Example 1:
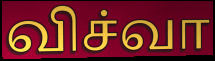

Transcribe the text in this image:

விச்வா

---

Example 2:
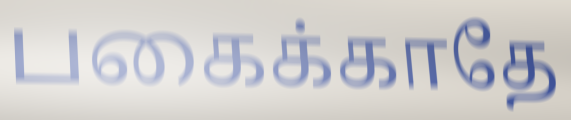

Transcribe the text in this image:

பகைக்காதே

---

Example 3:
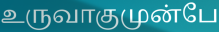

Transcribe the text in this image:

உருவாகுமுன்பே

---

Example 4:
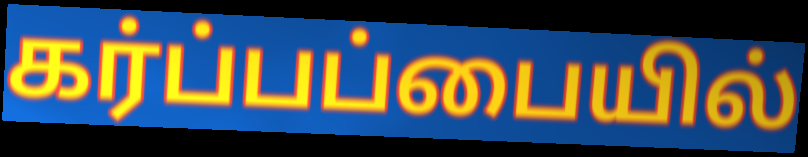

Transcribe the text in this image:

கர்ப்பப்பையில்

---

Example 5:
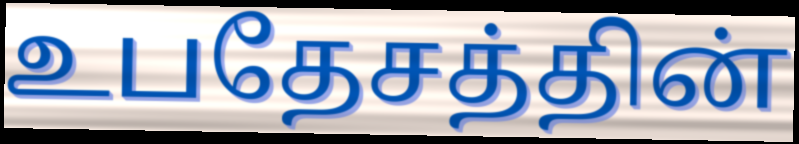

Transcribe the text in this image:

உபதேசத்தின்